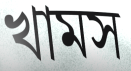
খামস